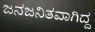
ಜನಜನಿತವಾಗಿದ್ದ